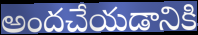
అందచేయడానికి